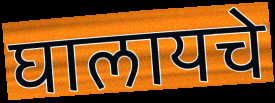
घालायचे